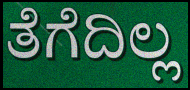
ತೆಗೆದಿಲ್ಲ